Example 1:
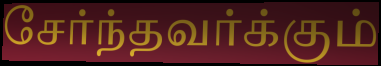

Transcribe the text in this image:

சேர்ந்தவர்க்கும்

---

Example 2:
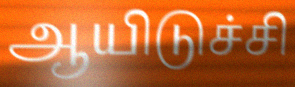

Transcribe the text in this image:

ஆயிடுச்சி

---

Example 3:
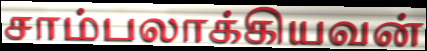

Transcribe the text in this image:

சாம்பலாக்கியவன்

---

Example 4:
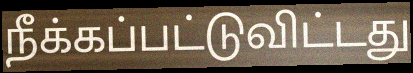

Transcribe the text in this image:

நீக்கப்பட்டுவிட்டது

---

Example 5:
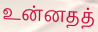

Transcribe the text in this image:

உன்னதத்